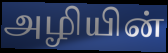
அழியின்